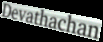
Devathachan